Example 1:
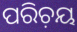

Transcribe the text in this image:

ପରିଚ଼ୟ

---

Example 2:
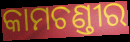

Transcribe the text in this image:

କାମଚଣ୍ଡୀର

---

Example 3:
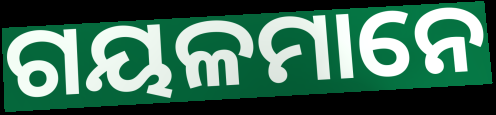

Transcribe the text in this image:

ଗୟଳମାନେ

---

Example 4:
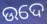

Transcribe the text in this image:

ଉଦେ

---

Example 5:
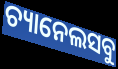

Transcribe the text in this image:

ଚ୍ୟାନେଲସବୁ